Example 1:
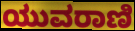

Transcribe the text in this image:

ಯುವರಾಣಿ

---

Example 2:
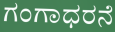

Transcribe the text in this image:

ಗಂಗಾಧರನೆ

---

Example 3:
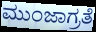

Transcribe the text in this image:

ಮುಂಜಾಗ್ರತೆ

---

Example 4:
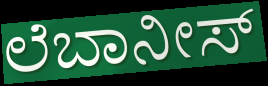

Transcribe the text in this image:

ಲೆಬಾನೀಸ್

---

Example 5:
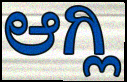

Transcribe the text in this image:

ಆಗ್ಲಿ